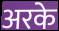
अरके